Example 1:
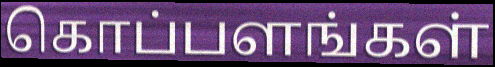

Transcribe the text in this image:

கொப்பளங்கள்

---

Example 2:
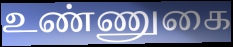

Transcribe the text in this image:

உண்ணுகை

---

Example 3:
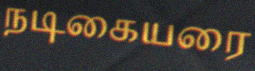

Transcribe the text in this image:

நடிகையரை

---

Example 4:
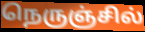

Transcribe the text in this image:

நெருஞ்சில்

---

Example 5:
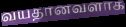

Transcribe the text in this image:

வயதானவளாக